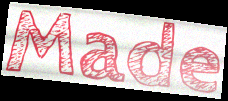
Made